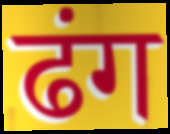
ढंग